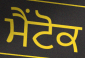
ਮੈਂਟੋਕ